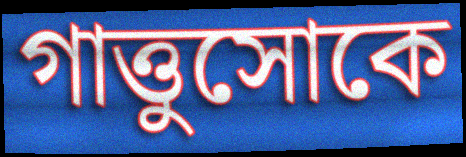
গাত্তুসোকে